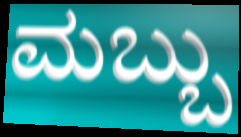
ಮಬ್ಬು